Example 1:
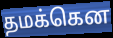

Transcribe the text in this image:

தமக்கென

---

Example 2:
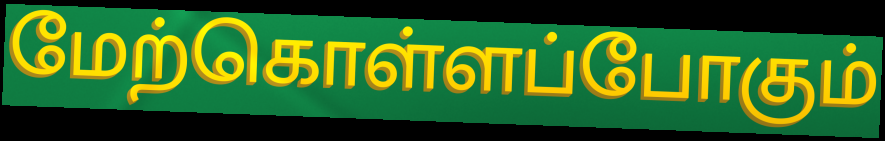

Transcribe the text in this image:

மேற்கொள்ளப்போகும்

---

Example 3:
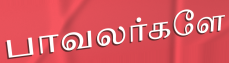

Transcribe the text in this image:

பாவலர்களே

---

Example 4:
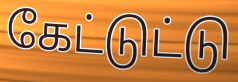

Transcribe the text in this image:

கேட்டுட்டு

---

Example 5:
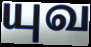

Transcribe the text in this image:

யுவ